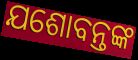
ଯଶୋବନ୍ତଙ୍କ